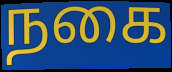
நகை